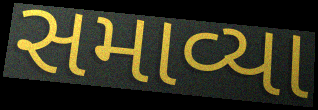
સમાવ્યા